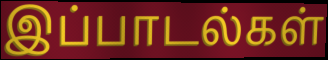
இப்பாடல்கள்